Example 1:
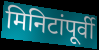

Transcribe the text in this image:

मिनिटांपूर्वी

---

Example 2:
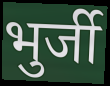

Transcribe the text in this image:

भुर्जी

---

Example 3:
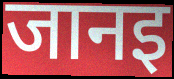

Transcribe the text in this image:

जानइ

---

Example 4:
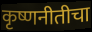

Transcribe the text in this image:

कृष्णनीतीचा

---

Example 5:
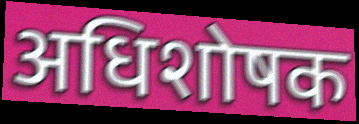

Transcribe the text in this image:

अधिशोषक